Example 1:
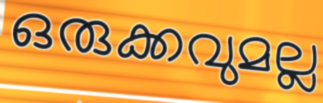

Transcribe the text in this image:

ഒരുക്കവുമല്ല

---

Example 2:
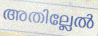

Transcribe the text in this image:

അതില്ലേൽ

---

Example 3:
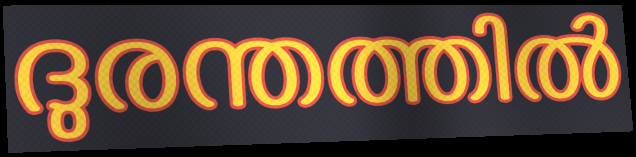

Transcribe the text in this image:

ദുരന്തത്തിൽ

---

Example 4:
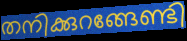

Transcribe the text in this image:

തനിക്കുറങ്ങേണ്ടി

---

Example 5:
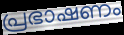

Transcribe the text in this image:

പ്രഭാഷണം